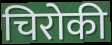
चिरोकी